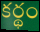
కర్థం